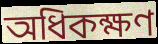
অধিকক্ষণ